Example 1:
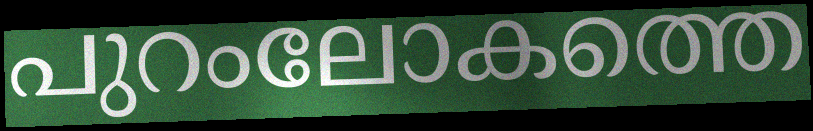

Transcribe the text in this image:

പുറംലോകത്തെ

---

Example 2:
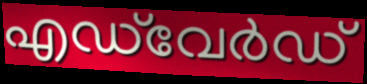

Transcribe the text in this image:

എഡ്‌വേർഡ്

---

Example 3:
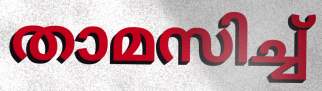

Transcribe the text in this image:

താമസിച്ച്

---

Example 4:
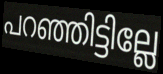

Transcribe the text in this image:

പറഞ്ഞിട്ടില്ലേ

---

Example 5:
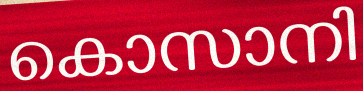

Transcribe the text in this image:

കൊസാനി